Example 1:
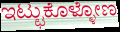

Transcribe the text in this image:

ಇಟ್ಟುಕೊಳ್ಳೋಣ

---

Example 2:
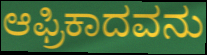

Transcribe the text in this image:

ಆಫ್ರಿಕಾದವನು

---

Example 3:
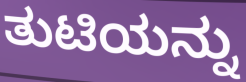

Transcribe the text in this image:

ತುಟಿಯನ್ನು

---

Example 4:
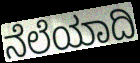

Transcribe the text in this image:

ನೆಲೆಯಾದಿ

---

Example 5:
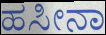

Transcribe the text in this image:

ಹಸೀನಾ